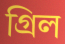
গ্রিল